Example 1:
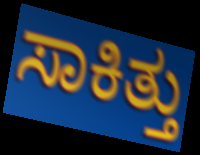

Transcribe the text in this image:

ಸಾಕಿತ್ತು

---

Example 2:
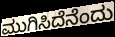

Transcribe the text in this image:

ಮುಗಿಸಿದೆನೆಂದು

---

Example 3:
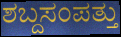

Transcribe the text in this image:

ಶಬ್ದಸಂಪತ್ತು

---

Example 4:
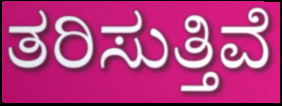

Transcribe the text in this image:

ತರಿಸುತ್ತಿವೆ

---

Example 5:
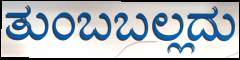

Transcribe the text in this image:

ತುಂಬಬಲ್ಲದು